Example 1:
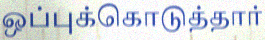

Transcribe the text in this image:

ஒப்புக்கொடுத்தார்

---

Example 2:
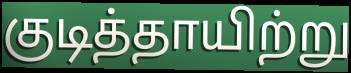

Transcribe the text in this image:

குடித்தாயிற்று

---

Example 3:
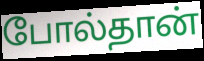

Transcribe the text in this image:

போல்தான்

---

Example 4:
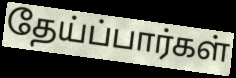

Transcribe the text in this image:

தேய்ப்பார்கள்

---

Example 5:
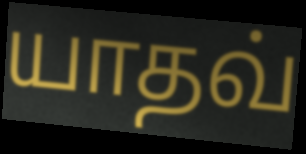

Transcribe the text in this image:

யாதவ்